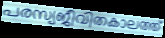
പരസ്യജീവിതകാലത്ത്